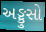
અઙ્કુસો